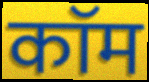
कॉम